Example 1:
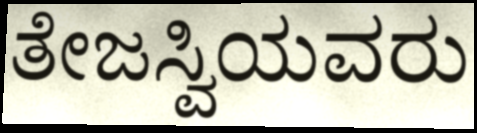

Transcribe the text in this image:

ತೇಜಸ್ವಿಯವರು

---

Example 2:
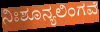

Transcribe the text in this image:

ನಿಃಶೂನ್ಯಲಿಂಗವೆ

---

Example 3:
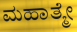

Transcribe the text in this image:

ಮಹಾತ್ಮೇ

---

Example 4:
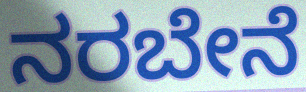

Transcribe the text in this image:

ನರಬೇನೆ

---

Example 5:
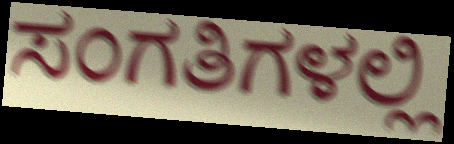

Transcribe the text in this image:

ಸಂಗತಿಗಳಲ್ಲಿ